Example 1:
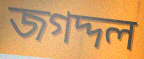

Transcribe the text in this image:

জগদ্দল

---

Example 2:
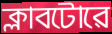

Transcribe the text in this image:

ক্লাবটোৱে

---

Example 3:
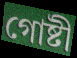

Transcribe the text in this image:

গোষ্টী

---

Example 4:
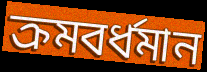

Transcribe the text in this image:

ক্ৰমবৰ্ধমান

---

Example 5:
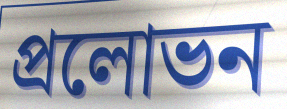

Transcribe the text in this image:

প্ৰলোভন